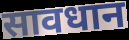
सावधान